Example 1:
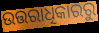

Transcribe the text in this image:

ଉତ୍ତରାଧିକାରରୁ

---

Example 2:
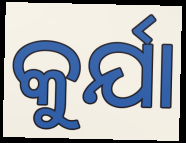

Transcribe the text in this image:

କୁର୍ଯା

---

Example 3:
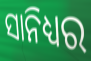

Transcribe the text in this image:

ସାନିଧ୍ୟର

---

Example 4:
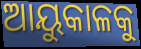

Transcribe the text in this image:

ଆୟୁକାଳକୁ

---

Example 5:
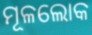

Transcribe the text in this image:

ମୂଳଲୋକ